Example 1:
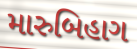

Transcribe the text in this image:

મારુબિહાગ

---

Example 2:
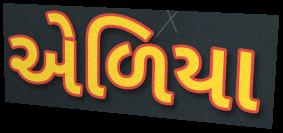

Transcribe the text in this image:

એળિયા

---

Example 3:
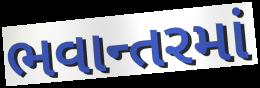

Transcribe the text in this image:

ભવાન્તરમાં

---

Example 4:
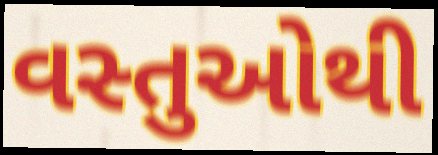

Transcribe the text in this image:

વસ્તુઓથી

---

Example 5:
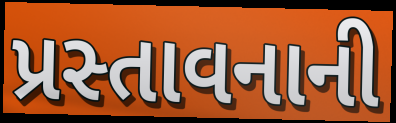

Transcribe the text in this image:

પ્રસ્તાવનાની